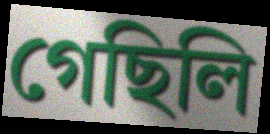
গেছিলি